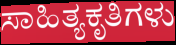
ಸಾಹಿತ್ಯಕೃತಿಗಳು